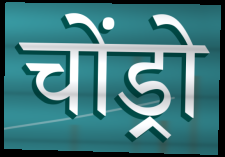
चोंड्रो